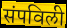
संपविली